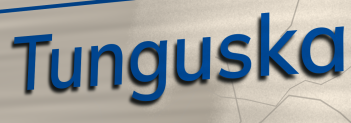
Tunguska